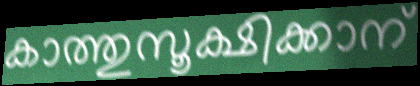
കാത്തുസൂക്ഷിക്കാന്